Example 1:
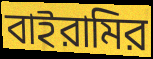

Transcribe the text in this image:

বাইরামির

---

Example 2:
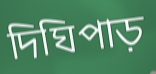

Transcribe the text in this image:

দিঘিপাড়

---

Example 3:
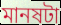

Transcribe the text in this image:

মানষটা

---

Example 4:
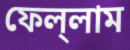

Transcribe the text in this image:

ফেল্‌লাম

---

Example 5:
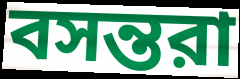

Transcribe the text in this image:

বসন্তরা